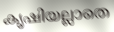
കൃഷിയല്ലാതെ